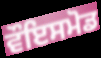
ਵੌਇਸਮੋਡ